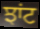
ਝਾਂਟ